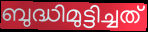
ബുദ്ധിമുട്ടിച്ചത്